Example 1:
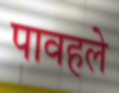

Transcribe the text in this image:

पावहले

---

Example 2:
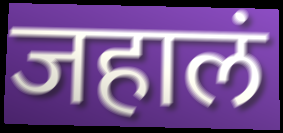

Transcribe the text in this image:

जहालं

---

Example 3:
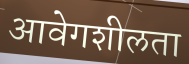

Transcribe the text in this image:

आवेगशीलता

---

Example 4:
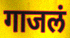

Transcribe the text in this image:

गाजलं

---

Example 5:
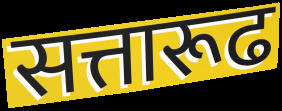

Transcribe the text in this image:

सत्तारूढ